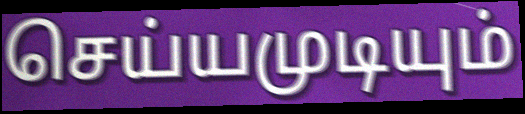
செய்யமுடியும்